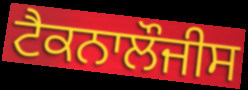
ਟੈਕਨਾਲੌਜੀਸ